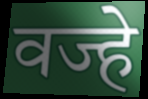
वज्हे